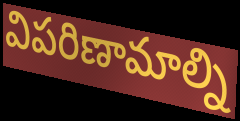
విపరిణామాల్ని